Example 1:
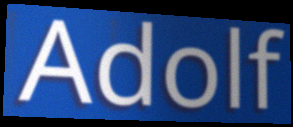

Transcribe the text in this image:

Adolf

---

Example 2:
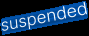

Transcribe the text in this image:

suspended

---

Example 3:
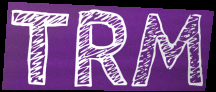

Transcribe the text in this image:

TRM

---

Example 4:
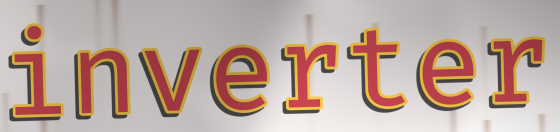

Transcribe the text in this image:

inverter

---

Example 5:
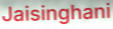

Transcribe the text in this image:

Jaisinghani